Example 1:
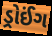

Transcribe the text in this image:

ડ્રોઈંગ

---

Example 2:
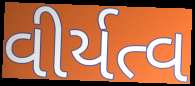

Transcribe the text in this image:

વીર્યત્વ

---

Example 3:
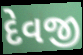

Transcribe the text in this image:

દેવજી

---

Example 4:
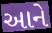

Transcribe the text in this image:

આને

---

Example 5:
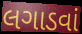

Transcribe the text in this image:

લગાડવાં